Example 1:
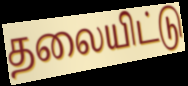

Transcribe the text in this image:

தலையிட்டு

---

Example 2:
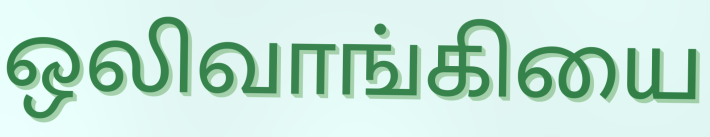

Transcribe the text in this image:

ஒலிவாங்கியை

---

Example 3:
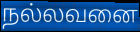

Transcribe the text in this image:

நல்லவனை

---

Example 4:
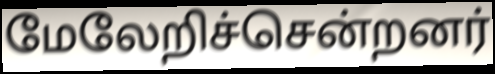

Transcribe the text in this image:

மேலேறிச்சென்றனர்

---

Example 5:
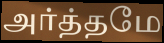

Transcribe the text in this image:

அர்த்தமே